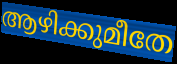
ആഴിക്കുമീതേ